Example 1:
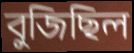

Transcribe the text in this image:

বুজিছিল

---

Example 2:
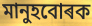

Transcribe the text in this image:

মানুহবোৰক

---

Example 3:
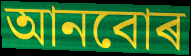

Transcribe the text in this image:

আনবোৰ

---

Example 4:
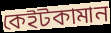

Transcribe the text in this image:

কেইটকামান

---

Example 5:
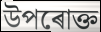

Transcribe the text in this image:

উপৰোক্ত